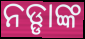
ନଡ୍ଡାଙ୍କ